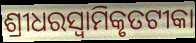
ଶ୍ରୀଧରସ୍ଵାମିକୃତଟୀକା